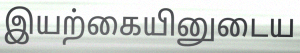
இயற்கையினுடைய